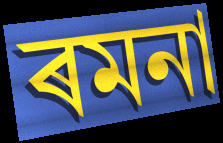
ৰমনা